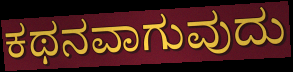
ಕಥನವಾಗುವುದು